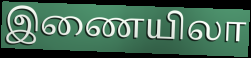
இணையிலா